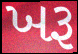
ખરૂ